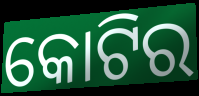
କୋଟିର